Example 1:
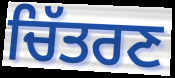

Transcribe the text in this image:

ਚਿੱਤਰਣ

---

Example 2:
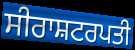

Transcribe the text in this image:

ਸੀਰਾਸ਼ਟਰਪਤੀ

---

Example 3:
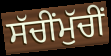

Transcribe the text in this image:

ਸੱਚੀਂਮੁੱਚੀਂ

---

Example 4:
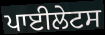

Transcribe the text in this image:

ਪਾਈਲੇਟਸ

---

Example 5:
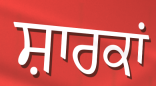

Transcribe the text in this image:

ਸ਼ਾਰਕਾਂ